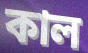
কাল